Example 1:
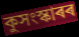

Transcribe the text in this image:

কুসংস্কাৰৰ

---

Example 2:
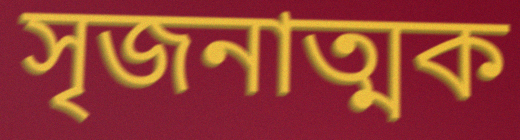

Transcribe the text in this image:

সৃজনাত্মক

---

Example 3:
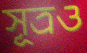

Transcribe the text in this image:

সূত্ৰও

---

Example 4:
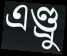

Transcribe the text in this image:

এণ্ড্ৰু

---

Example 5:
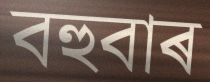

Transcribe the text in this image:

বহুবাৰ